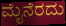
ಮೈನೆರದು